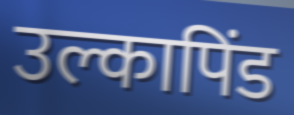
उल्‍कापिंड